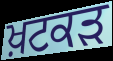
ਖ਼ਟਕੜ